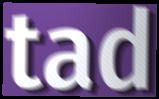
tad